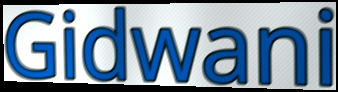
Gidwani